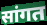
सांगत